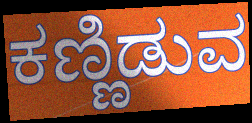
ಕಣ್ಣಿಡುವ